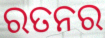
ରତନର